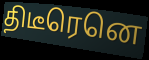
திடீரெனெ